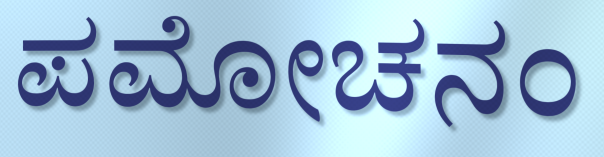
ಪಮೋಚನಂ